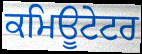
ਕਮਿਊਟੇਟਰ